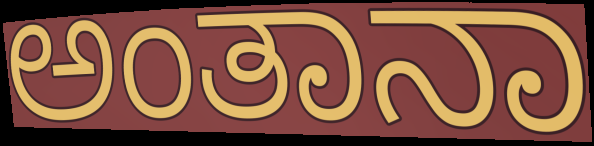
ಅಂತಾನಾ